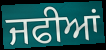
ਜਫੀਆਂ